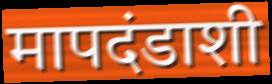
मापदंडाशी